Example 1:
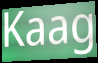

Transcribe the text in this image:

Kaag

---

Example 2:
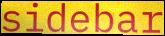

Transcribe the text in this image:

sidebar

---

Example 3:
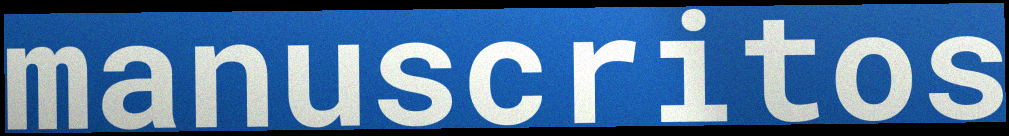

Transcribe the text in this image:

manuscritos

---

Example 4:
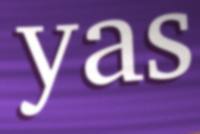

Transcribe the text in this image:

yas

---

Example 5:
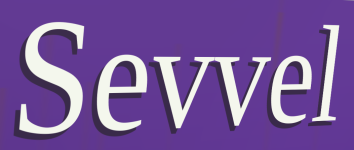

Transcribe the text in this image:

Sevvel